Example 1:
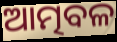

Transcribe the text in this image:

ଆତ୍ମବଳ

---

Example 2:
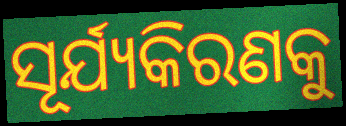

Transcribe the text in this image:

ସୂର୍ଯ୍ୟକିରଣକୁ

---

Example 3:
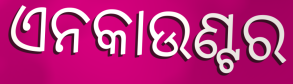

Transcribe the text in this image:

ଏନକାଉଣ୍ଟର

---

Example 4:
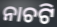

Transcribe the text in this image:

ନାଚଟି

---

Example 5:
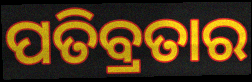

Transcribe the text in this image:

ପତିବ୍ରତାର